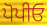
ਪੋਪੀਓ